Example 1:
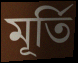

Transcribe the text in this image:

মূর্তি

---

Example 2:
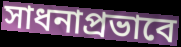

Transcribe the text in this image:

সাধনাপ্রভাবে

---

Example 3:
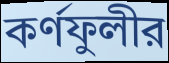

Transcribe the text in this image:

কর্ণফুলীর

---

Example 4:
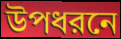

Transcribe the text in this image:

উপধরনে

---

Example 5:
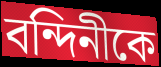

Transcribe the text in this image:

বন্দিনীকে